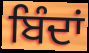
ਬਿੰਦਾਂ